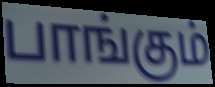
பாங்கும்